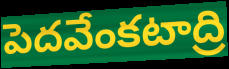
పెదవేంకటాద్రి